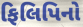
ફિલિપિનો